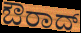
ಔರಾದ್